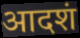
आदशं